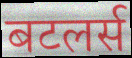
बटलर्स